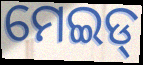
ମେଇଡ୍